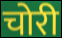
चोरी